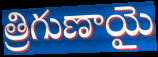
త్రిగుణాయై